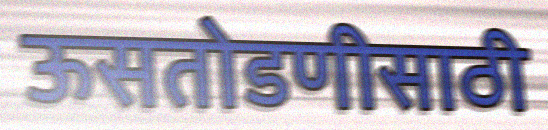
ऊसतोडणीसाठी